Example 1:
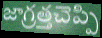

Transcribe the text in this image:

జాగ్రత్తచెప్పి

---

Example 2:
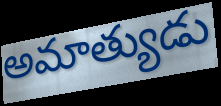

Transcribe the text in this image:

అమాత్యుడు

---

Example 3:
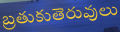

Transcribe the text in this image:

బ్రతుకుతెరువులు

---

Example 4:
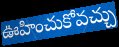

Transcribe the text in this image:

ఊహించుకోవచ్చు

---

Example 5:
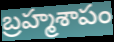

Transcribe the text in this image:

బ్రహ్మశాపం